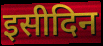
इसीदिन